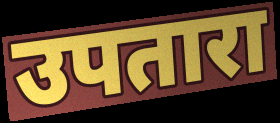
उपतारा